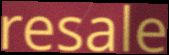
resale